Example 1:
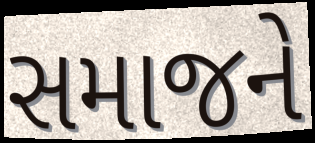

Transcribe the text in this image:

સમાજને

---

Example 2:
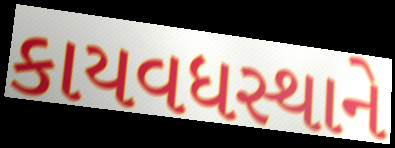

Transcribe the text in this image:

કાયવધસ્થાને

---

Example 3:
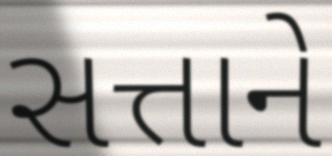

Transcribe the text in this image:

સત્તાને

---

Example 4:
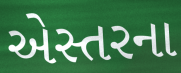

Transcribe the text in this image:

એસ્તરના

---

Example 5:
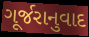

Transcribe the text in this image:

ગૂર્જરાનુવાદ